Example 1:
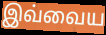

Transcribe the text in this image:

இவ்வைய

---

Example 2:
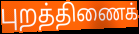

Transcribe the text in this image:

புறத்திணைக்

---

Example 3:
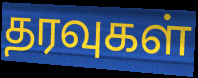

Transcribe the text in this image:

தரவுகள்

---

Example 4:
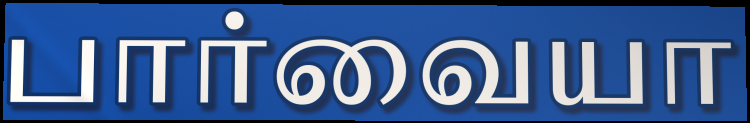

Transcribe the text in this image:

பார்வையா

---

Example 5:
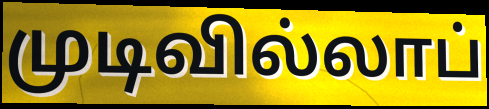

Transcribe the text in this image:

முடிவில்லாப்